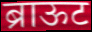
ब्राऊट